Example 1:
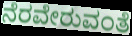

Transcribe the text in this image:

ನೆರವೇರುವಂತೆ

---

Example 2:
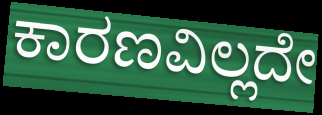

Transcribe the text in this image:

ಕಾರಣವಿಲ್ಲದೇ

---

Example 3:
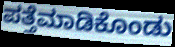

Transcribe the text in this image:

ಪತ್ತೆಮಾಡಿಕೊಂಡು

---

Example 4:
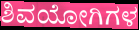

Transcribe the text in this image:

ಶಿವಯೋಗಿಗಳ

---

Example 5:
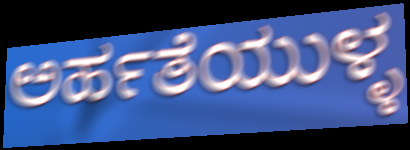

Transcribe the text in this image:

ಅರ್ಹತೆಯುಳ್ಳ